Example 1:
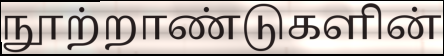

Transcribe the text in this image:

நூற்றாண்டுகளின்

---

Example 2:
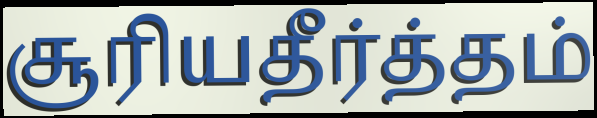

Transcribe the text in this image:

சூரியதீர்த்தம்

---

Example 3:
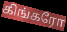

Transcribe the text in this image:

கிங்கரோ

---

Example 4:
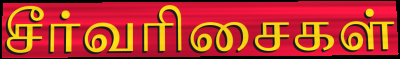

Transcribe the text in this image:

சீர்வரிசைகள்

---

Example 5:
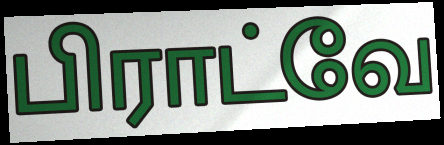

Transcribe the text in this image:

பிராட்வே